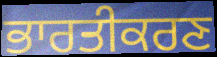
ਭਾਰਤੀਕਰਣ